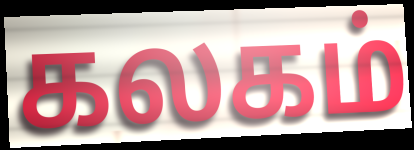
கலகம்